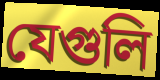
যেগুলি